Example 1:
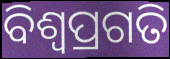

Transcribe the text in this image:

ବିଶ୍ବପ୍ରଗତି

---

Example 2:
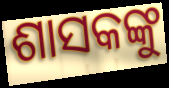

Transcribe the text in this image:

ଶାସକଙ୍କୁ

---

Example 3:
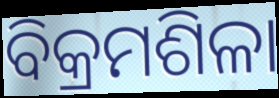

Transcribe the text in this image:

ବିକ୍ରମଶିଳା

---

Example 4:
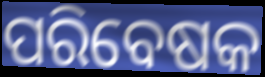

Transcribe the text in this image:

ପରିବେଷକ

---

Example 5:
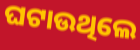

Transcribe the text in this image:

ଘଟାଉଥିଲେ